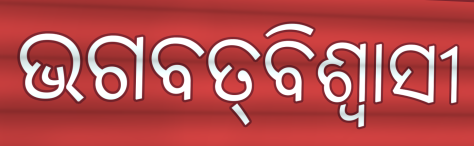
ଭଗବତ୍‌ବିଶ୍ଵାସୀ